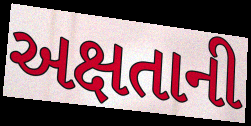
અક્ષતાની